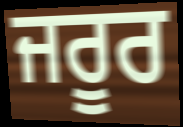
ਜਰੂਰ